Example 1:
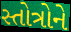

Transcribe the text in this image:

સ્તોત્રોને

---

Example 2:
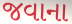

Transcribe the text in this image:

જવાના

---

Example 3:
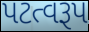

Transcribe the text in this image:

પટત્વરૂપ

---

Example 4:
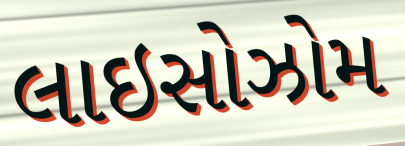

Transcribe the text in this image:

લાઇસોઝોમ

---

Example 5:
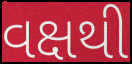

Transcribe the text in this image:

વક્ષથી